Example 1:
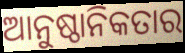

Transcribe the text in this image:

ଆନୁଷ୍ଠାନିକତାର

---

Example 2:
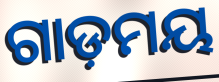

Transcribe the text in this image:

ଗାଡ଼ମୟ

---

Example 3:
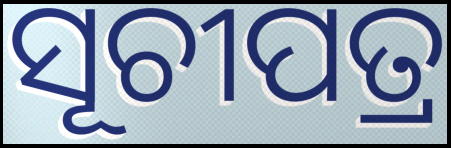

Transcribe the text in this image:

ସୂଚୀପତ୍ର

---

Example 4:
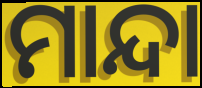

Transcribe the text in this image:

ମାନ୍ଦା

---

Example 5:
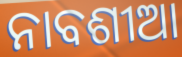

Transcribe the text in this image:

ନାବଶୀଆ